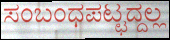
ಸಂಬಂಧಪಟ್ಟದ್ದಲ್ಲ